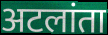
अटलांता